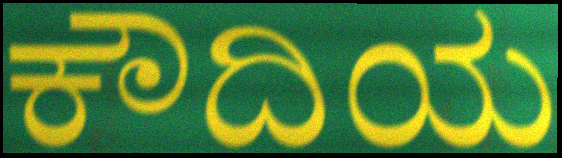
ಕೌದಿಯ